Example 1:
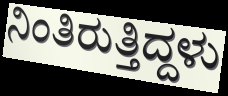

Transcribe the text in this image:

ನಿಂತಿರುತ್ತಿದ್ದಳು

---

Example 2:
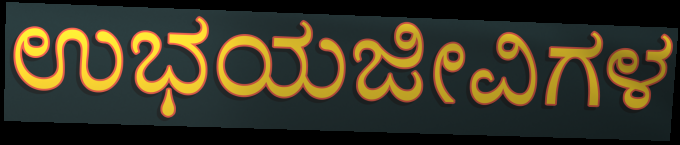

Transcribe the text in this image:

ಉಭಯಜೀವಿಗಳ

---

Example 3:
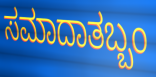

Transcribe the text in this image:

ಸಮಾದಾತಬ್ಬಂ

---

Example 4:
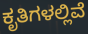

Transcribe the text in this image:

ಕೃತಿಗಳಲ್ಲಿವೆ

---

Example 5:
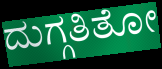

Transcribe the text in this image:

ದುಗ್ಗತಿತೋ